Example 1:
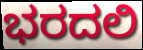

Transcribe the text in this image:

ಭರದಲಿ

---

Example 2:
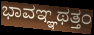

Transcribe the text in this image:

ಭಾವಞ್ಞಥತ್ತಂ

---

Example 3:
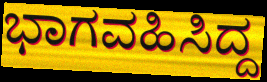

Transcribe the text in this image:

ಭಾಗವಹಿಸಿದ್ದ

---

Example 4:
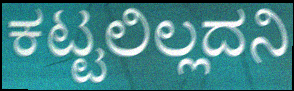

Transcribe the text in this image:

ಕಟ್ಟಲಿಲ್ಲದನಿ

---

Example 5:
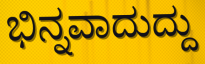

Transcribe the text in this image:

ಭಿನ್ನವಾದುದ್ದು